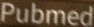
Pubmed